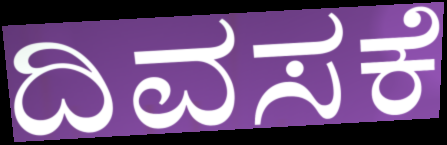
ದಿವಸಕೆ